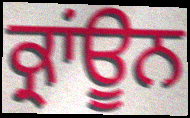
ਕ੍ਰਾਂਊਨ